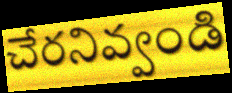
చేరనివ్వండి